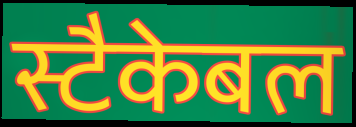
स्टैकेबल